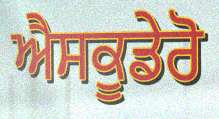
ਐਸਕੂਡੇਰੋ